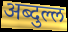
अब्दुल्ल